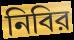
নিবির